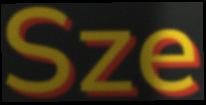
Sze